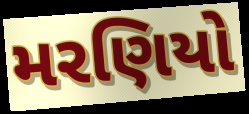
મરણિયો